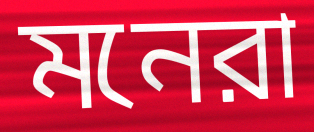
মনেরা